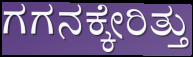
ಗಗನಕ್ಕೇರಿತ್ತು